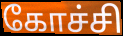
கோச்சி